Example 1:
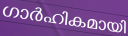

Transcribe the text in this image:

ഗാർഹികമായി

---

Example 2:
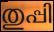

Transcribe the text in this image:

തുപ്പി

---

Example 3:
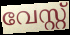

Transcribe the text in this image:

വേസ്റ്റ്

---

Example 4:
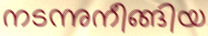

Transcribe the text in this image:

നടന്നുനീങ്ങിയ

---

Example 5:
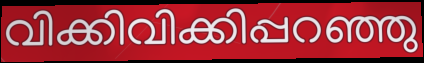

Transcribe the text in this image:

വിക്കിവിക്കിപ്പറഞ്ഞു